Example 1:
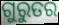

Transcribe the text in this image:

ଗୁରୁତର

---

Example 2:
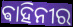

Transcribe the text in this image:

ଵାହିନୀର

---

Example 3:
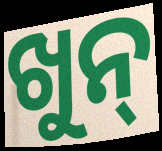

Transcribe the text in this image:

ଖୁନ୍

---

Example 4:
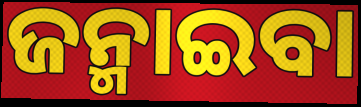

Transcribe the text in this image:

ଜନ୍ମାଇବା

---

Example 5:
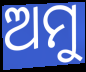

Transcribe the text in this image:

ଅମୁ